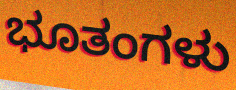
ಭೂತಂಗಳು